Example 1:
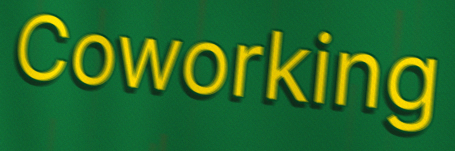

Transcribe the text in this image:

Coworking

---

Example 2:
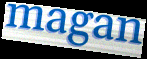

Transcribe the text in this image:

magan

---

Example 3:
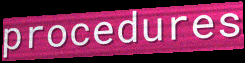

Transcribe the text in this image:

procedures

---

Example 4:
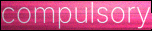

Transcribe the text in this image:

compulsory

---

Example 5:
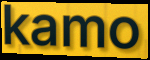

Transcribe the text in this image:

kamo